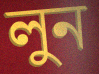
লুন